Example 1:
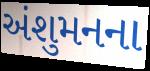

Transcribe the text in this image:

અંશુમનના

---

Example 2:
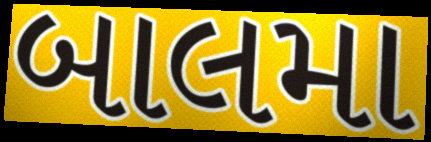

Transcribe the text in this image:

બાલમા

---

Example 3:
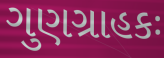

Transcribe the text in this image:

ગુણગ્રાહકઃ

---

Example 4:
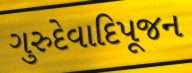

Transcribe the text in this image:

ગુરુદેવાદિપૂજન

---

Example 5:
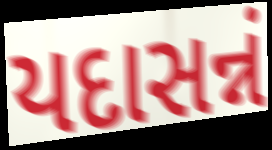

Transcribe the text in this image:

યદાસન્નં